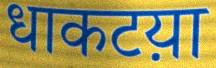
धाकटय़ा